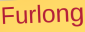
Furlong